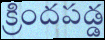
క్రిందపడ్డ